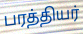
பரத்தியர்